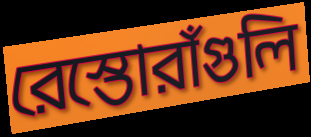
রেস্তোরাঁগুলি